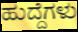
ಹುದ್ದೆಗಳು